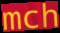
mch